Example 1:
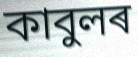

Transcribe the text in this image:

কাবুলৰ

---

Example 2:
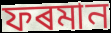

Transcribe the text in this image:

ফৰমান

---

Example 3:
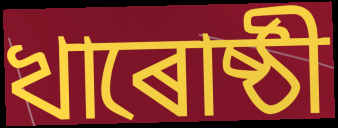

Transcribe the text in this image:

খাৰোষ্ঠী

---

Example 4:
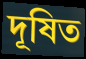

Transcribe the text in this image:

দূষিত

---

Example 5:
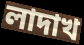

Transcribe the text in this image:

লাদাখ